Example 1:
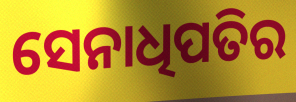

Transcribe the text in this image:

ସେନାଧିପତିର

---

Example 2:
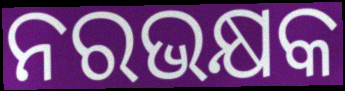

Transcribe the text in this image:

ନରଭକ୍ଷକ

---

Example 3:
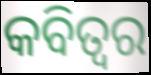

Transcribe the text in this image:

କବିତ୍ଵର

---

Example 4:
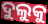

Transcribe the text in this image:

ଦୁଲୁକୁ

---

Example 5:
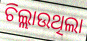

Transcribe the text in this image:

ଚିଲ୍ଲାଉଥିଲା